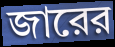
জারের